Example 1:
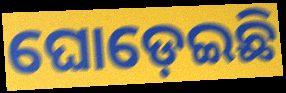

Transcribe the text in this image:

ଘୋଡ଼େଇଛି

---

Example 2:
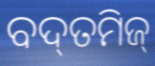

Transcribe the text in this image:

ବଦ୍‌ତମିଜ୍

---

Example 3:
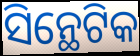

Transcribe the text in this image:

ସିନ୍ଥେଟିକ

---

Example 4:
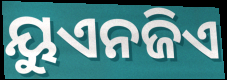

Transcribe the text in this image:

ୟୁଏନଜିଏ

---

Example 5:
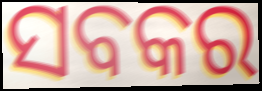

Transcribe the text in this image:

ସବକର